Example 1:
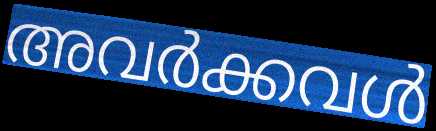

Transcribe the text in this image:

അവർക്കവൾ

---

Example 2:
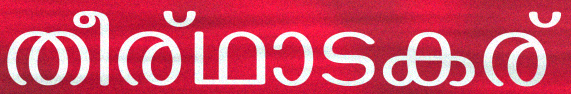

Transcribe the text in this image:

തീര്ഥാടകര്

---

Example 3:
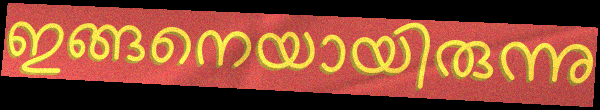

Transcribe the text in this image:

ഇങ്ങനെയായിരുന്നു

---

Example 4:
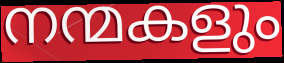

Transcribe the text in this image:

നന്മകളും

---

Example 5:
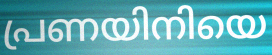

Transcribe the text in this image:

പ്രണയിനിയെ